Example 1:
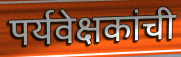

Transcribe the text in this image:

पर्यवेक्षकांची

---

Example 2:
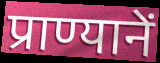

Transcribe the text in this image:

प्राण्यानें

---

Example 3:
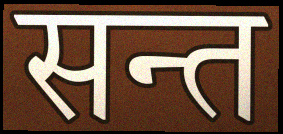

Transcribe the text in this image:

सन्त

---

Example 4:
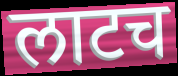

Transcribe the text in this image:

लाटच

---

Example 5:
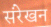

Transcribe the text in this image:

संरेखन